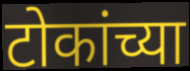
टोकांच्या